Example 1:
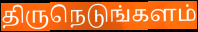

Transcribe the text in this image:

திருநெடுங்களம்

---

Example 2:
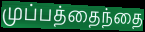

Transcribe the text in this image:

முப்பத்தைந்தை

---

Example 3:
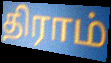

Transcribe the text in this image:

திராம்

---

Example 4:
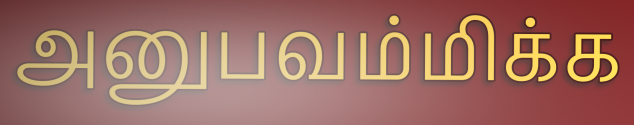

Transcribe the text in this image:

அனுபவம்மிக்க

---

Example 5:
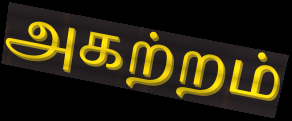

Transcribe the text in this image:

அகற்றம்